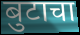
बुटाचा